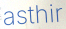
asthir